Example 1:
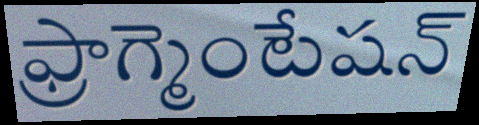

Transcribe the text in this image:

ఫ్రాగ్మెంటేషన్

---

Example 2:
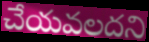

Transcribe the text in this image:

చేయవలదని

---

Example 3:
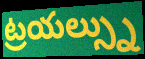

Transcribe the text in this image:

ట్రయల్స్ను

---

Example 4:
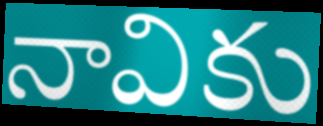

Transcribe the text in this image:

నావికు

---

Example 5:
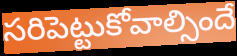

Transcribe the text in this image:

సరిపెట్టుకోవాల్సిందే